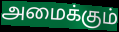
அமைக்கும்